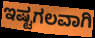
ಇಷ್ಟಗಲವಾಗಿ